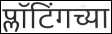
प्लॉटिंगच्या